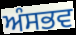
ਅੰਸਭਵ